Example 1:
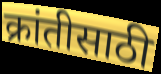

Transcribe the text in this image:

क्रांतीसाठी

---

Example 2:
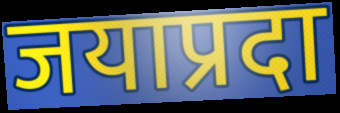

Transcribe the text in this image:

जयाप्रदा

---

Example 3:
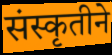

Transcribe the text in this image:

संस्कृतीने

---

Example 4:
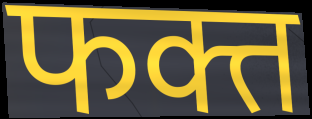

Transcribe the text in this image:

फक्त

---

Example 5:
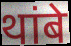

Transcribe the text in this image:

थांबे